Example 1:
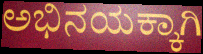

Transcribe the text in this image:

ಅಭಿನಯಕ್ಕಾಗಿ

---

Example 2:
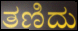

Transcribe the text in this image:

ತಣಿದು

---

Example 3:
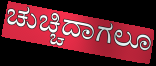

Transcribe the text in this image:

ಚುಚ್ಚಿದಾಗಲೂ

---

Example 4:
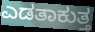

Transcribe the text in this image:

ಎಡತಾಕುತ್ತ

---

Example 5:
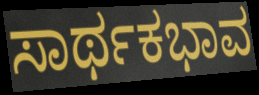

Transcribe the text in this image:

ಸಾರ್ಥಕಭಾವ